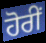
ਹੋਰੀਂ